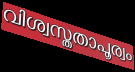
വിശ്വസ്തതാപൂര്വം